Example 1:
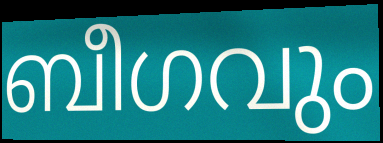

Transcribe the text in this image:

ബീഗവും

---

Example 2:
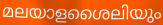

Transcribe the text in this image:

മലയാളശൈലിയും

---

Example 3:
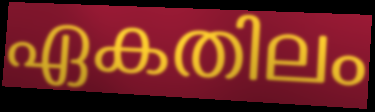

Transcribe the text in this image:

ഏകതിലം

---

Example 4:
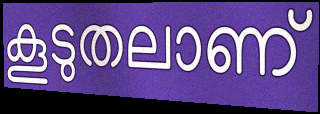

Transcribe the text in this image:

കൂടുതലാണ്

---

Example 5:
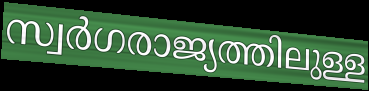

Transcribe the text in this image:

സ്വർഗരാജ്യത്തിലുള്ള